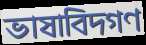
ভাষাবিদগণ